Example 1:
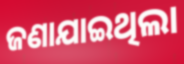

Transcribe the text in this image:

ଜଣାଯାଇଥିଲା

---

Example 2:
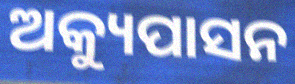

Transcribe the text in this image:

ଅକ୍ୟୁପାସନ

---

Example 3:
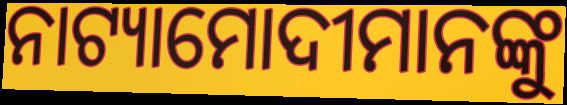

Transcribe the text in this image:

ନାଟ୍ୟାମୋଦୀମାନଙ୍କୁ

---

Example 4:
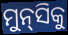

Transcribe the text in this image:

ମୁନ୍‌ସିକୁ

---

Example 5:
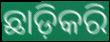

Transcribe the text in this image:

ଛାଡ଼ିକରି